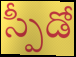
స్పీడో